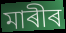
মাৰীৰ